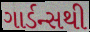
ગાર્ડન્સથી